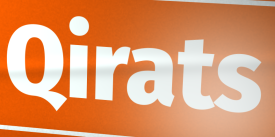
Qirats